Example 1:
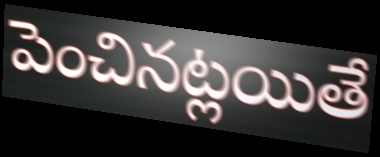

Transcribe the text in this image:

పెంచినట్లయితే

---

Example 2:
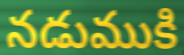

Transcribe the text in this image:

నడుముకి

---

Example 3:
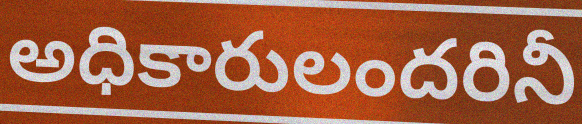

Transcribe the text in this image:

అధికారులందరినీ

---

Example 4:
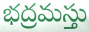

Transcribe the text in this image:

భద్రమస్తు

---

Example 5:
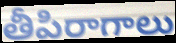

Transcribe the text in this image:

తీపిరాగాలు